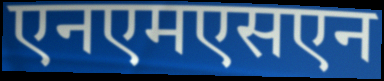
एनएमएसएन